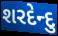
શરદેન્દુ